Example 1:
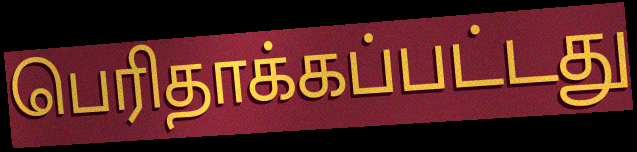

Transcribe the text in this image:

பெரிதாக்கப்பட்டது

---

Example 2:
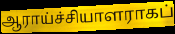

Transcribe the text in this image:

ஆராய்ச்சியாளராகப்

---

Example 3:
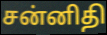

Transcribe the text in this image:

சன்னிதி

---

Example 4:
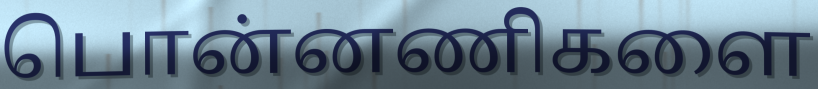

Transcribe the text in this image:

பொன்னணிகளை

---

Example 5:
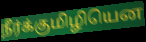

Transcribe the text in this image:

நீர்க்குமிழியென